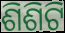
ଶିଶିଟି